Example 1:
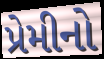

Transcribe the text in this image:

પ્રેમીનો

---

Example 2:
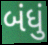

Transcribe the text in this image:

બંધું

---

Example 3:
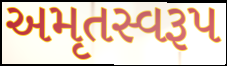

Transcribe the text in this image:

અમૃતસ્વરૂપ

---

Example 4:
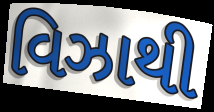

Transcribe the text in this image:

વિઝાથી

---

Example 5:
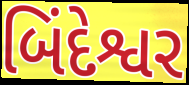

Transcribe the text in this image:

બિંદેશ્વર